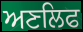
ਅਣਲਿਫ